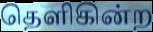
தெளிகின்ற